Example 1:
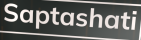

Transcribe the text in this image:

Saptashati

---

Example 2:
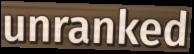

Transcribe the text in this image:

unranked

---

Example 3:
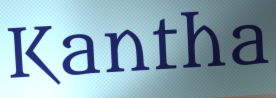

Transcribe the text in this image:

Kantha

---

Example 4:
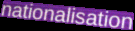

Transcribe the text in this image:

nationalisation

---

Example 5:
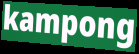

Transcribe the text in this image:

kampong